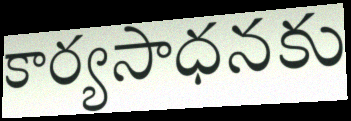
కార్యసాధనకు